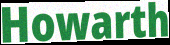
Howarth